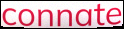
connate